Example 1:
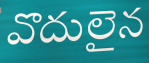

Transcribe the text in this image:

వొదులైన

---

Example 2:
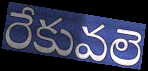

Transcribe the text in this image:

రేకువలె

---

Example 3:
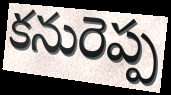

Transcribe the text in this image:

కనురెప్ప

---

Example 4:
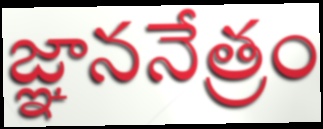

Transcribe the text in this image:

జ్ఞాననేత్రం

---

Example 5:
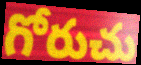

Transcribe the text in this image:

గోరుచు